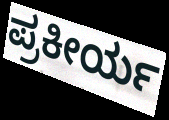
ಪ್ರಕೀರ್ಯ